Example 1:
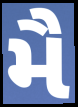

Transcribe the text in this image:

મૈ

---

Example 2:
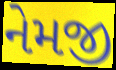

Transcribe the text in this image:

નેમજી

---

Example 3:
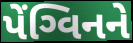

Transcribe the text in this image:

પેંગ્વિનને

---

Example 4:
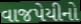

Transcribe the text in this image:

વાજપેયીનો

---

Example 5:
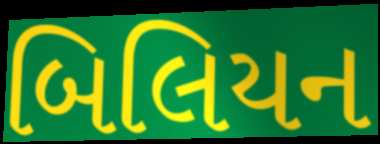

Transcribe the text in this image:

બિલિયન